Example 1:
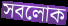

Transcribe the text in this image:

সবলোক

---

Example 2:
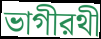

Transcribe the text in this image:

ভাগীরথী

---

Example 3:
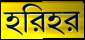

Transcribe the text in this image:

হরিহর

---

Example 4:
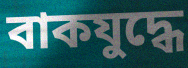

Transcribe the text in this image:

বাকযুদ্ধে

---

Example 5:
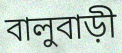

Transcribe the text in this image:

বালুবাড়ী